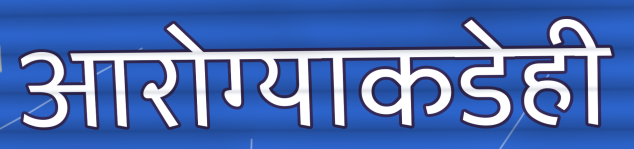
आरोग्याकडेही